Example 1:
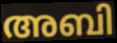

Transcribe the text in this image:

അബി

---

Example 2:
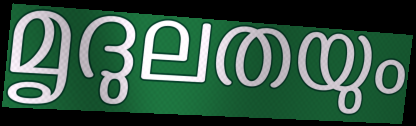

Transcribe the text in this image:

മൃദുലതയും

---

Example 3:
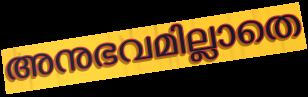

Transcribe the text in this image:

അനുഭവമില്ലാതെ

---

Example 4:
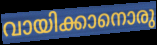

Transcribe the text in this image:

വായിക്കാനൊരു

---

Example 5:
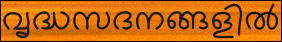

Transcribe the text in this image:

വൃദ്ധസദനങ്ങളിൽ